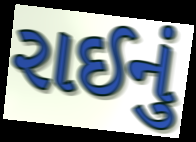
રાઈનું